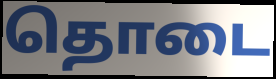
தொடை